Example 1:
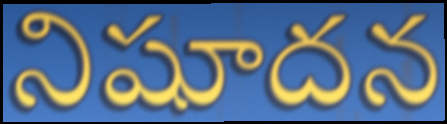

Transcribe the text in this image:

నిషూదన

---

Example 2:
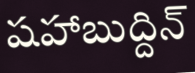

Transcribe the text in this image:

షహాబుద్దిన్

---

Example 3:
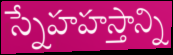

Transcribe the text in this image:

స్నేహహస్తాన్ని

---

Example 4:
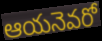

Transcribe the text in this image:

ఆయనెవరో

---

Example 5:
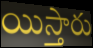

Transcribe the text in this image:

యిస్తారు